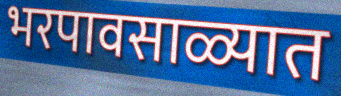
भरपावसाळ्यात